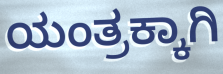
ಯಂತ್ರಕ್ಕಾಗಿ